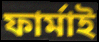
ফাৰ্মাই